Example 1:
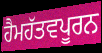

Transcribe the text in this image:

ਹੈਮਹੱਤਵਪੂਰਨ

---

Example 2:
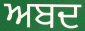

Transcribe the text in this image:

ਅਬਦ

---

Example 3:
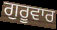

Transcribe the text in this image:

ਗੁਰੂਵਾਰ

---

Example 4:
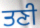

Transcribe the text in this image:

ਤਣੀ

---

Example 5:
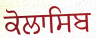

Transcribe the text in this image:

ਕੋਲਾਸਿਬ